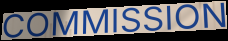
COMMISSION